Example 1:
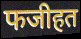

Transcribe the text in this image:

फजीहत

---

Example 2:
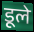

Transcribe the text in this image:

डूले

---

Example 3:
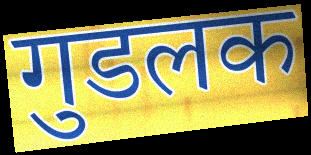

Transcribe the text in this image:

गुडलक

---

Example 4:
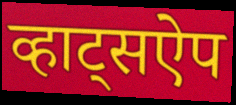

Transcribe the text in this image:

व्हाट्सऐप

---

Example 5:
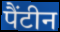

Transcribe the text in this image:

पैंटीन